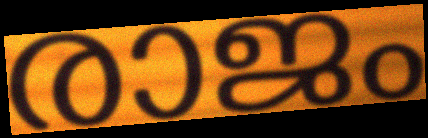
രാജം